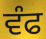
ਵੰਫ